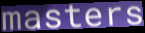
masters